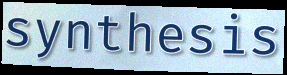
synthesis